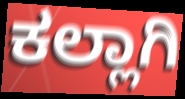
ಕಲ್ಲಾಗಿ